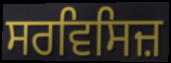
ਸਰਵਿਸਿਜ਼